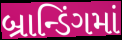
બ્રાન્ડિંગમાં